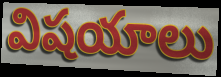
విషయాలు